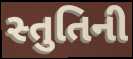
સ્તુતિની